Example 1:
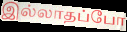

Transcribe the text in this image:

இல்லாதப்போ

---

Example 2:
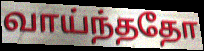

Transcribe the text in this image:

வாய்ந்ததோ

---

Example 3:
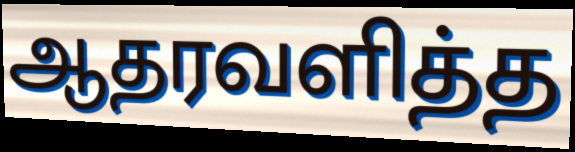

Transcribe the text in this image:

ஆதரவளித்த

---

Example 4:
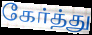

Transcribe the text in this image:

கேர்த்து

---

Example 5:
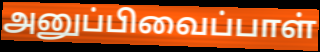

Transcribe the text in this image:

அனுப்பிவைப்பாள்